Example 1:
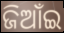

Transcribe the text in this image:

ଜିଆଁଇ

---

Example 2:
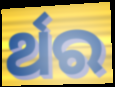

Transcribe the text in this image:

ର୍ଥର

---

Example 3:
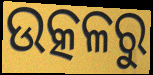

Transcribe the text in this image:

ଉତ୍କଳରୁ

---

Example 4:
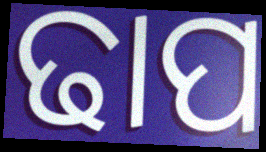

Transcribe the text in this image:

ଢାପ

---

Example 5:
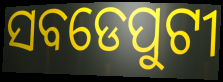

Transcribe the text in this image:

ସବଡେପୁଟୀ